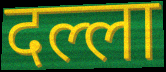
दल्ला